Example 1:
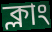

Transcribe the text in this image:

ক্লাং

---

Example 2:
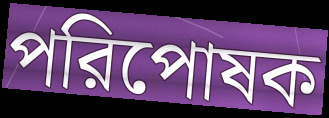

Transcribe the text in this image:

পরিপোষক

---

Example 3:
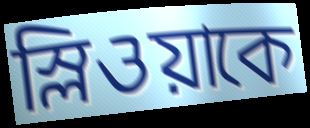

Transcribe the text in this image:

স্লিওয়াকে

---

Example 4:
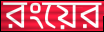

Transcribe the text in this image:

রংয়ের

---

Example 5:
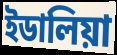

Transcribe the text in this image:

ইডালিয়া